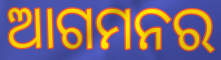
ଆଗମନର